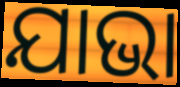
ଯାଭା